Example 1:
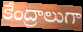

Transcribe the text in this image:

కేంద్రాలుగా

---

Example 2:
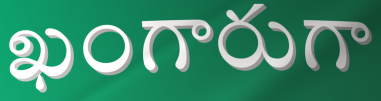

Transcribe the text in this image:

ఖంగారుగా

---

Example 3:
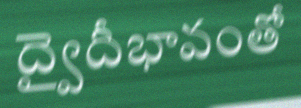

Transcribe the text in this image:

ద్వైదీభావంతో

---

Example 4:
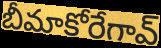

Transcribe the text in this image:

బీమాకోరేగావ్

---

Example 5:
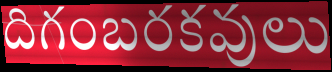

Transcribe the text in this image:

దిగంబరకవులు